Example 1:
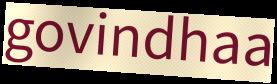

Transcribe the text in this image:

govindhaa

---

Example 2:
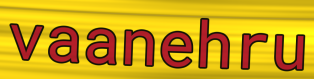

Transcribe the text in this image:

vaanehru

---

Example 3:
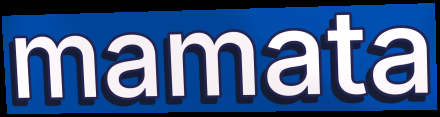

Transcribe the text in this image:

mamata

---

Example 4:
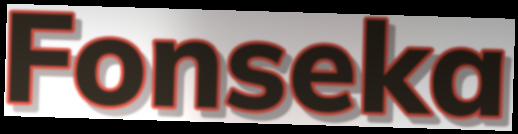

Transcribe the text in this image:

Fonseka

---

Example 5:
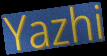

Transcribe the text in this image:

Yazhi